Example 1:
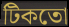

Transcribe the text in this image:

টিকতো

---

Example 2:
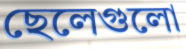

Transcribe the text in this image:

ছেলেগুলো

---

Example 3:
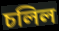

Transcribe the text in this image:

চলিল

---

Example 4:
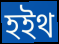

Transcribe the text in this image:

হইথ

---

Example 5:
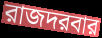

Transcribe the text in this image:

রাজদরবার